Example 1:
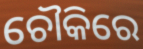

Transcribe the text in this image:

ଚୌକିରେ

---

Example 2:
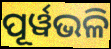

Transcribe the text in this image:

ପୂର୍ୱଭଳି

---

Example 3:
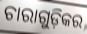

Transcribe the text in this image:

ଚାରାଗୁଡ଼ିକର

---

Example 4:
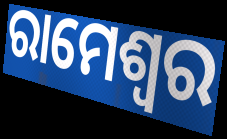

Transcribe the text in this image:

ରାମେଶ୍ୱର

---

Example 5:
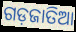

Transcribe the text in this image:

ଗଡ଼ଜାତିଆ